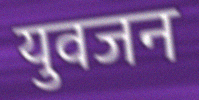
युवजन